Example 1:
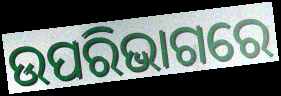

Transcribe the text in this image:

ଉପରିଭାଗରେ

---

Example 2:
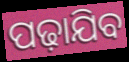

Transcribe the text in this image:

ପଢ଼ାଯିବ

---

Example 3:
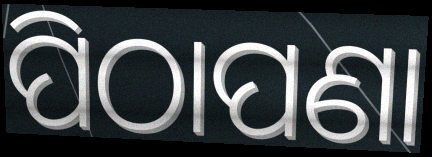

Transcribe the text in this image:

ପିଠାପଣା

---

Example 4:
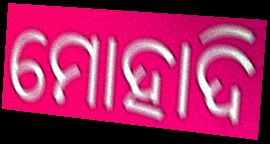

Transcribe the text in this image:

ମୋହାଦି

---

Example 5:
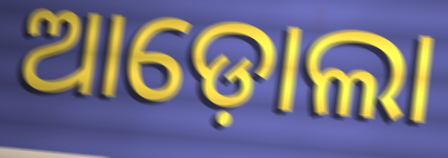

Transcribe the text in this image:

ଆଡ଼ୋଲା